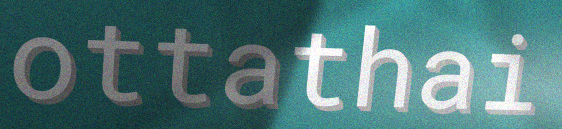
ottathai